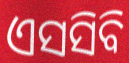
ଏସସିବି